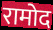
रामोद